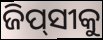
ଜିପ୍‌ସୀକୁ